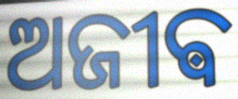
ଅଜୀଵ